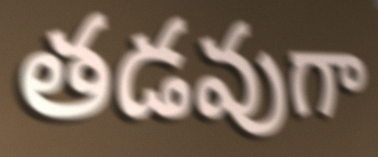
తడవుగా